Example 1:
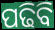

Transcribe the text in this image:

ପଢିବି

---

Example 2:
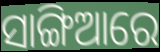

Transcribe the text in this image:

ସାଙ୍ଗିଆରେ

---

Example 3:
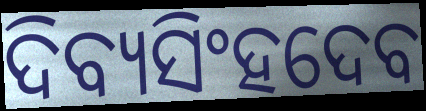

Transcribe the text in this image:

ଦିବ୍ୟସିଂହଦେବ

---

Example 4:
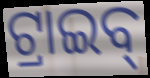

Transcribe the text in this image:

ଟ୍ରାଇବ୍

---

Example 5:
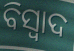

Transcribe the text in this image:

ବିସ୍ୱାଦ